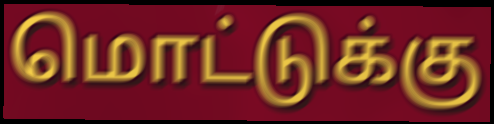
மொட்டுக்கு